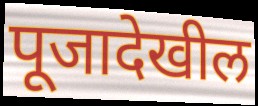
पूजादेखील